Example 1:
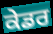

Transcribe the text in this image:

ਕੇਡਰ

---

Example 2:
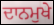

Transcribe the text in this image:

ਦਾਨਮੁਖੇ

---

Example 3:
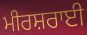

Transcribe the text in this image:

ਮੀਰਸ਼ਰਾਈ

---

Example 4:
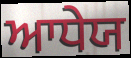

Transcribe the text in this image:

ਆਧੇਯ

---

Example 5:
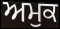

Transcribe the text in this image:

ਅਮੁਕ